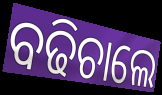
ବଢିଚାଲେ